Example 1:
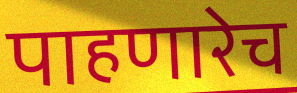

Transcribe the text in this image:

पाहणारेच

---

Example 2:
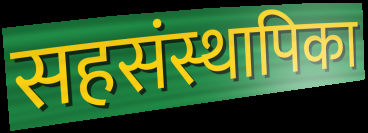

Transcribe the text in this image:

सहसंस्थापिका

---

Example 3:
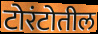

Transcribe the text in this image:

टोरंटोतील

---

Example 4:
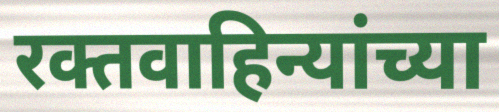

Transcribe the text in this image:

रक्तवाहिन्यांच्या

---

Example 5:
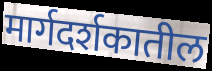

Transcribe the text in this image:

मार्गदर्शकातील